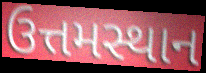
ઉત્તમસ્થાન